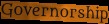
Governorship